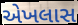
એખલાસ